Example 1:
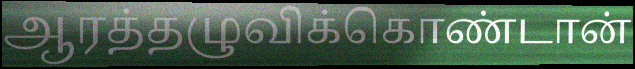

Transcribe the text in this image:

ஆரத்தழுவிக்கொண்டான்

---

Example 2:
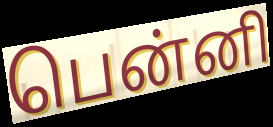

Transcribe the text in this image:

பென்னி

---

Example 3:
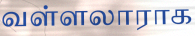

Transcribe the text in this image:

வள்ளலாராக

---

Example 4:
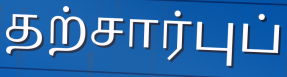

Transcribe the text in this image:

தற்சார்புப்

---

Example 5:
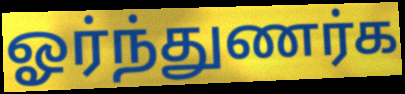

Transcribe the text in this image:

ஓர்ந்துணர்க